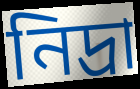
নিদ্রা